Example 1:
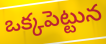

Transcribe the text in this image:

ఒక్కపెట్టున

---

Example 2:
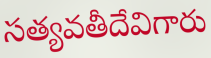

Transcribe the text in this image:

సత్యవతీదేవిగారు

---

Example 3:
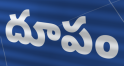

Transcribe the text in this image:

దూపం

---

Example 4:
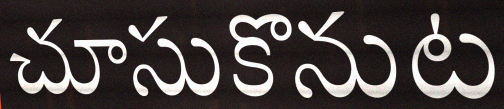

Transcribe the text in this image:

చూసుకొనుట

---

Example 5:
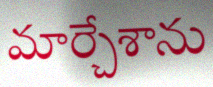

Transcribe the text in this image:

మార్చేశాను